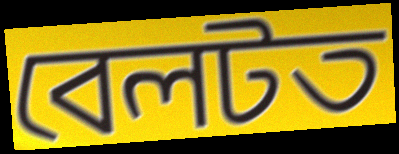
বেলটত